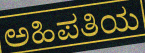
ಅಹಿಪತಿಯ